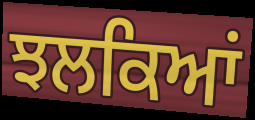
ਝਲਕਿਆਂ